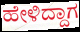
ಹೇಳಿದ್ದಾಗ